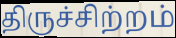
திருச்சிற்றம்